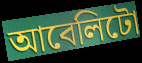
আবেলিটো